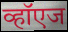
व्हॉएज